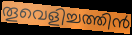
തൂവെളിച്ചത്തിൻ